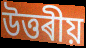
উত্তৰীয়